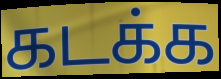
கடக்க